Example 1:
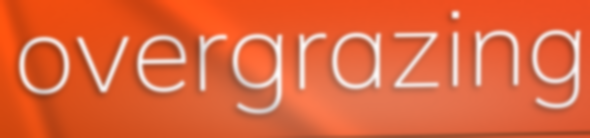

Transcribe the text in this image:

overgrazing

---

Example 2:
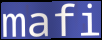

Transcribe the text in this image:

mafi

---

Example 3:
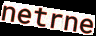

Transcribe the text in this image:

netrne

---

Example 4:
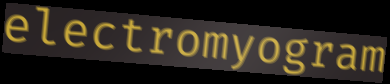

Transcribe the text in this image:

electromyogram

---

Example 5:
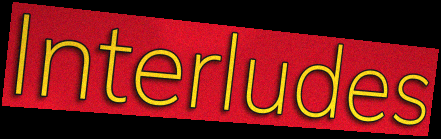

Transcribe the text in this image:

Interludes